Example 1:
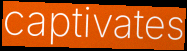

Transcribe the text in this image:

captivates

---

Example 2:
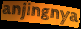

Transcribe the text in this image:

anjingnya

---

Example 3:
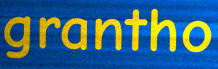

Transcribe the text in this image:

grantho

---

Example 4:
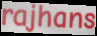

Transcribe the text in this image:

rajhans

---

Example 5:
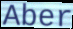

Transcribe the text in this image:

Aber